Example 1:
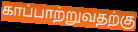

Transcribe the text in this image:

காப்பாற்றுவதற்கு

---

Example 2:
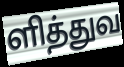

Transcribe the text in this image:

ளித்துவ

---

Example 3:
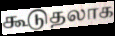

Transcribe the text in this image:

கூடுதலாக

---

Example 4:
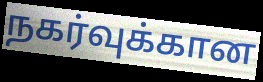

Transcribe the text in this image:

நகர்வுக்கான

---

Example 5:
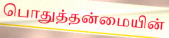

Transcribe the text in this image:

பொதுத்தன்மையின்